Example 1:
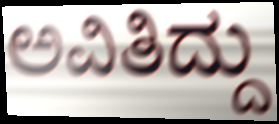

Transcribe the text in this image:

ಅವಿತಿದ್ದು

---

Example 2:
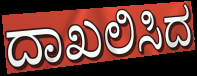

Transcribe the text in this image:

ದಾಖಲಿಸಿದ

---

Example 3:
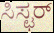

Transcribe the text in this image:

ಸಿಸ್ಟರ್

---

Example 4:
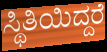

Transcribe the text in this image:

ಸ್ಥಿತಿಯಿದ್ದರೆ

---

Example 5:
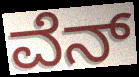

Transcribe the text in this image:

ವೆನ್